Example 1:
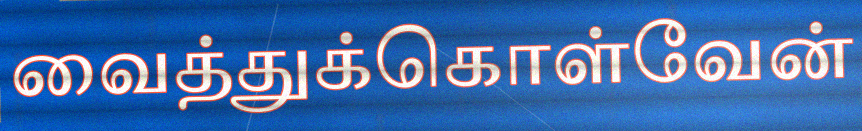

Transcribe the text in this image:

வைத்துக்கொள்வேன்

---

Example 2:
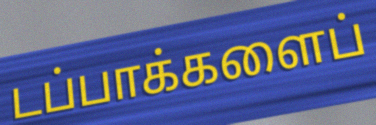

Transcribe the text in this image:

டப்பாக்களைப்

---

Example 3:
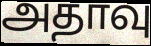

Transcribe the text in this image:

அதாவு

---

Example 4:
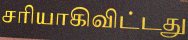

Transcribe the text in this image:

சரியாகிவிட்டது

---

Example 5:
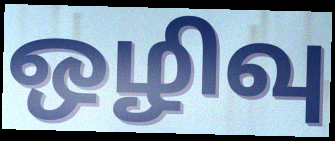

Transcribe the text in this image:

ஒழிவு